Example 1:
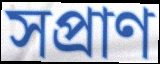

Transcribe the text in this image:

সপ্রাণ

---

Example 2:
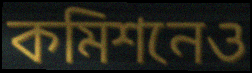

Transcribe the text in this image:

কমিশনেও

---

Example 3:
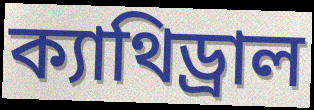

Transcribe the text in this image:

ক্যাথিড্রাল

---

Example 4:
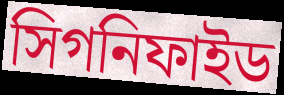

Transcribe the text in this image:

সিগনিফাইড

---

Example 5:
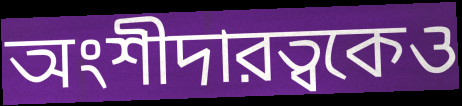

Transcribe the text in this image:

অংশীদারত্বকেও